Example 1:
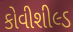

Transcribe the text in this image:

કોવીશીલ્ડ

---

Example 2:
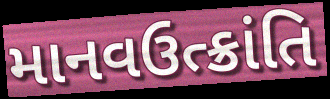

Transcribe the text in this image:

માનવઉત્ક્રાંતિ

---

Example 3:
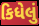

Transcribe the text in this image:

કિધેલું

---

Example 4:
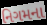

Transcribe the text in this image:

નિગમના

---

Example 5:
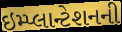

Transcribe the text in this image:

ઇમ્પ્લાન્ટેશનની